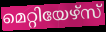
മെറ്റിയേഴ്സ്